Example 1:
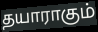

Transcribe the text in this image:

தயாராகும்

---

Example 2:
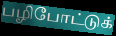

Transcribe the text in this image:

பழிபோட்டுக்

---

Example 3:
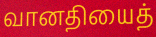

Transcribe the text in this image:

வானதியைத்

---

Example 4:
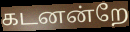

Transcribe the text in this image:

கடனன்றே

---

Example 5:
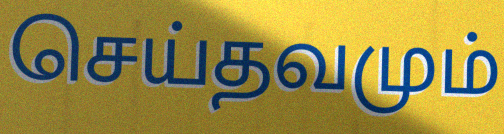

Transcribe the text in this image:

செய்தவமும்